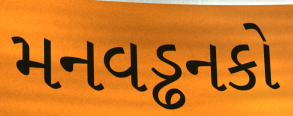
મનવડ્ઢનકો